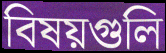
বিষয়গুলি